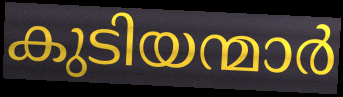
കുടിയന്മാർ